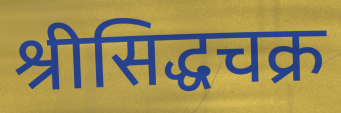
श्रीसिद्धचक्र